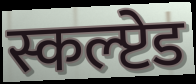
स्कल्प्टेड